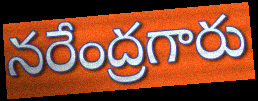
నరేంద్రగారు